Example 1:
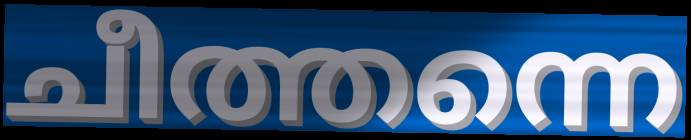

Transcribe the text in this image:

ചീത്തന്നെ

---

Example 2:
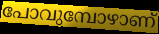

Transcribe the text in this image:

പോവുമ്പോഴാണ്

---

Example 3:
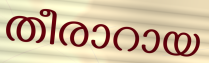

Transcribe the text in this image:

തീരാറായ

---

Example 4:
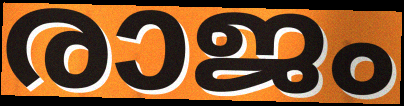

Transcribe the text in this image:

രാജം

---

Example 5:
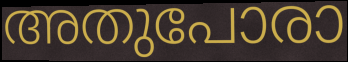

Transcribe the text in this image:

അതുപോരാ